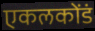
एकलकोंडं